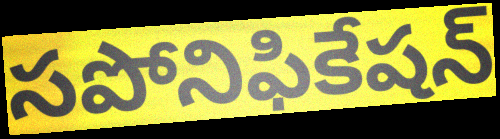
సపోనిఫికేషన్